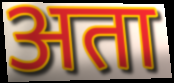
अता